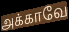
அக்காவே